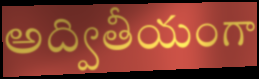
అద్వితీయంగా